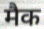
मैक